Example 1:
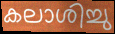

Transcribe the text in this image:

കലാശിച്ചു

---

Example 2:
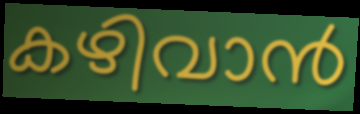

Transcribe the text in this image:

കഴിവാൻ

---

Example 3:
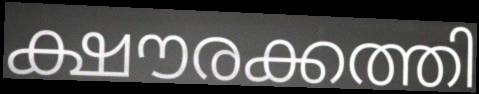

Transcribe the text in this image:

ക്ഷൗരക്കത്തി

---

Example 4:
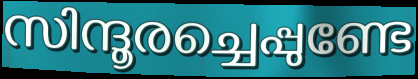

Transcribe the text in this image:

സിന്ദൂരച്ചെപ്പുണ്ടേ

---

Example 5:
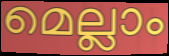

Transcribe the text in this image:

മെല്ലാം